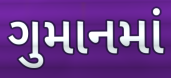
ગુમાનમાં